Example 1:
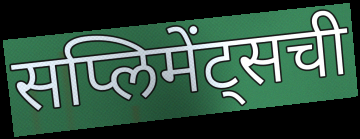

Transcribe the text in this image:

सप्लिमेंट्सची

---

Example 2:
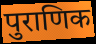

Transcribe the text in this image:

पुराणिक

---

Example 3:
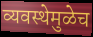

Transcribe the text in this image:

व्यवस्थेमुळेच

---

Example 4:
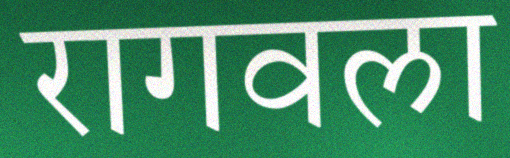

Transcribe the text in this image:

रागवला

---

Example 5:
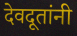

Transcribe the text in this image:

देवदूतांनी